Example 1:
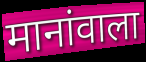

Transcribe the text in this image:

मानांवाला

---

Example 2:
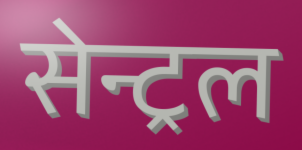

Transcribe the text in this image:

सेन्ट्रल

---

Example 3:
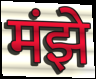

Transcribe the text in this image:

मंझे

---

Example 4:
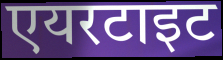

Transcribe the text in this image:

एयरटाइट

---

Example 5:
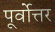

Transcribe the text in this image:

पूर्वोत्तर